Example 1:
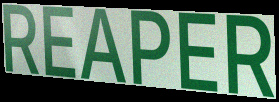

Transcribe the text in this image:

REAPER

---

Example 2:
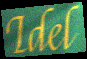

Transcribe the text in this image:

Idel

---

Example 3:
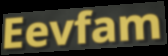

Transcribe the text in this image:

Eevfam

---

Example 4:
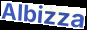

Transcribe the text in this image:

Albizza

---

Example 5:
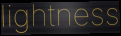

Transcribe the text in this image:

lightness